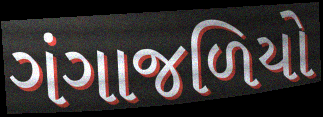
ગંગાજળિયો